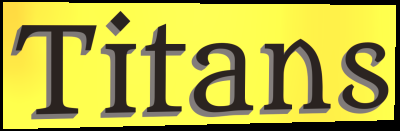
Titans